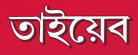
তাইয়েব